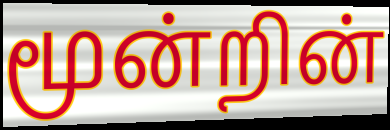
மூன்றின்